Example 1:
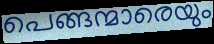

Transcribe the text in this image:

പെങ്ങന്മാരെയും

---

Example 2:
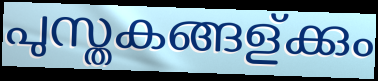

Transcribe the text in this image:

പുസ്തകങ്ങള്ക്കും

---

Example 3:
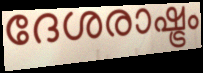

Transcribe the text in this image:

ദേശരാഷ്ട്രം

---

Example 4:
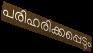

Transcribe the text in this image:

പരിഹരിക്കപ്പെടും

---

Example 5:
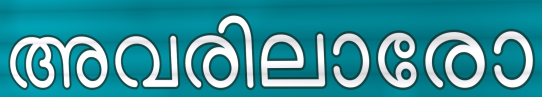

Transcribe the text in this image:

അവരിലാരോ